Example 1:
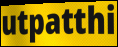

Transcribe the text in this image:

utpatthi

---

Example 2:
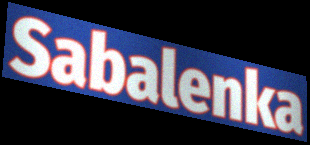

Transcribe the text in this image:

Sabalenka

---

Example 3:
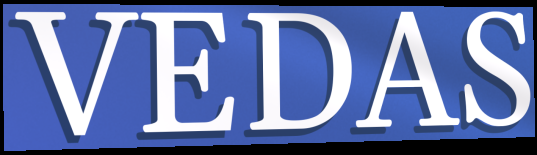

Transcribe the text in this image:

VEDAS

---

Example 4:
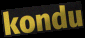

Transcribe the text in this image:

kondu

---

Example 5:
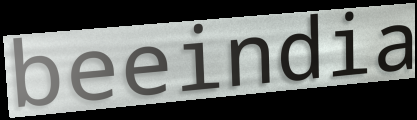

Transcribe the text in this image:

beeindia